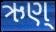
ઋણ્